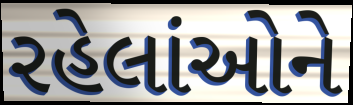
રહેલાંઓને